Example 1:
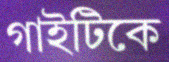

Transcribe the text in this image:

গাইটিকে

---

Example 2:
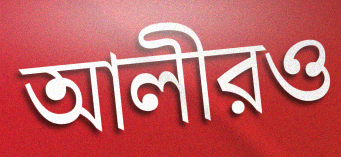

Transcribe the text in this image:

আলীরও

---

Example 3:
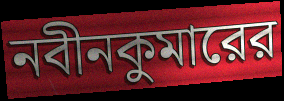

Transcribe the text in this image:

নবীনকুমারের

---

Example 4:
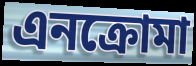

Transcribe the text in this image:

এনক্রোমা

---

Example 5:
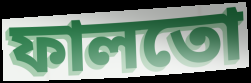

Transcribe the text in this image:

ফালতো